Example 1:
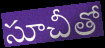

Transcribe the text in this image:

సూచీతో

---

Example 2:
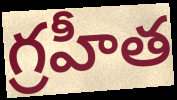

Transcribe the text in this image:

గ్రహీత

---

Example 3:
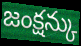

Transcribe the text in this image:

జంక్షన్కు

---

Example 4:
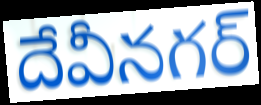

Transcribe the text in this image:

దేవీనగర్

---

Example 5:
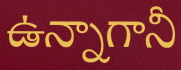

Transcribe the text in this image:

ఉన్నాగానీ